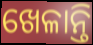
ଖେଳାନ୍ତି